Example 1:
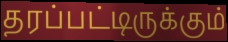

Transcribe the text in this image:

தரப்பட்டிருக்கும்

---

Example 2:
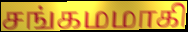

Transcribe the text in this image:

சங்கமமாகி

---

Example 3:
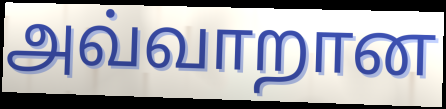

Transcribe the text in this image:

அவ்வாறான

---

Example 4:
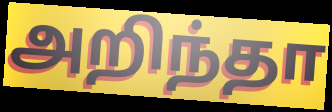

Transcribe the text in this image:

அறிந்தா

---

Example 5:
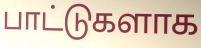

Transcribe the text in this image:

பாட்டுகளாக